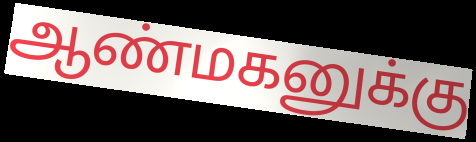
ஆண்மகனுக்கு